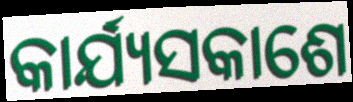
କାର୍ଯ୍ୟସକାଶେ